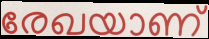
രേഖയാണ്